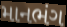
માનભંગ